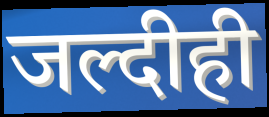
जल्दीही